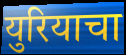
युरियाचा